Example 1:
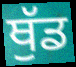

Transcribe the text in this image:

ਥੁੱਡ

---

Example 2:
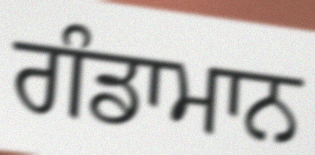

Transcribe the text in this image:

ਗੰਡਾਮਾਨ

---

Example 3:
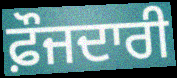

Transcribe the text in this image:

ਫ਼ੌਜਦਾਰੀ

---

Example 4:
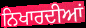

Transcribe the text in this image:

ਨਿਖਾਰਦੀਆਂ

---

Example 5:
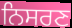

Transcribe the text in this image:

ਨਿਸਰਣ